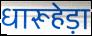
धारूहेड़ा